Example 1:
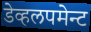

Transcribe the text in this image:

डेव्हलपमेन्ट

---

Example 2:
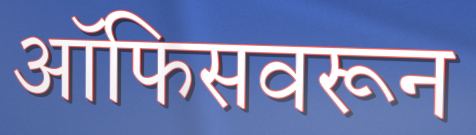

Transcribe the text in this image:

ऑफिसवरून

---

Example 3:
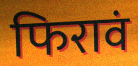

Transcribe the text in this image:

फिरावं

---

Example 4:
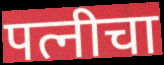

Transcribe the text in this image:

पत्नीचा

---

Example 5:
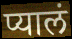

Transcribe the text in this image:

प्यालं